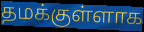
தமக்குள்ளாக